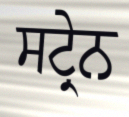
ਸਟ੍ਰੇਨ